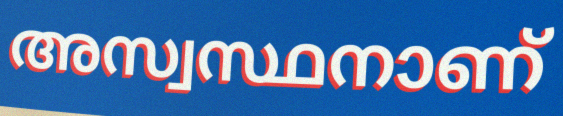
അസ്വസ്ഥനാണ്